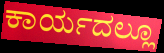
ಕಾರ್ಯದಲ್ಲೂ